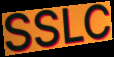
SSLC